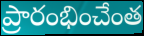
ప్రారంభించేంత